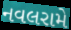
નવલરામે